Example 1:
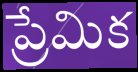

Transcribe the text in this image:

ప్రేమిక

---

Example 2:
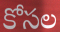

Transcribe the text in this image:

కోసల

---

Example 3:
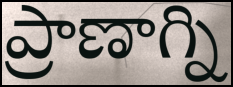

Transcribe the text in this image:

ప్రాణాగ్ని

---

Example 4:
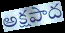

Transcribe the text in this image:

అక్షపాద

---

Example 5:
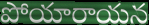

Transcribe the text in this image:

పోయారాయన